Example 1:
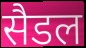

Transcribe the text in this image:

सैडल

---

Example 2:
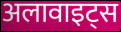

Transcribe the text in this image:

अलावाइट्स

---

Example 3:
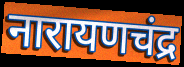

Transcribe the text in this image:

नारायणचंद्र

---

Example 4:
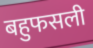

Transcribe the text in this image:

बहुफसली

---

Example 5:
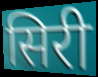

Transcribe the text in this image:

सिरी